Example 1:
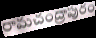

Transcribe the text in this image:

రామచంద్రాపురం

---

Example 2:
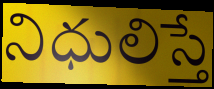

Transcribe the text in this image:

నిధులిస్తే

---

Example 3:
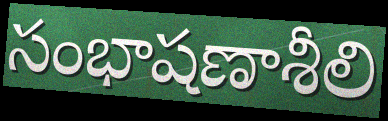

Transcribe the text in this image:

సంభాషణాశీలి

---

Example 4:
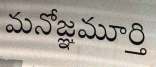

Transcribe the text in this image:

మనోజ్ఞమూర్తి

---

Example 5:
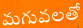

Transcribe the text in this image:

మగువలతో